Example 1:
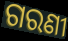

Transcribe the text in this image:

ଗରଣୀ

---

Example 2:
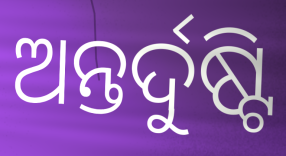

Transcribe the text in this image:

ଅନ୍ତର୍ଦୁଷ୍ଟି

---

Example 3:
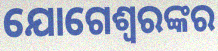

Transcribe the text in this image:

ଯୋଗେଶ୍ଵରଙ୍କର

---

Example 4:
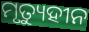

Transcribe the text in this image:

ମୃତ୍ୟୁହୀନ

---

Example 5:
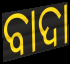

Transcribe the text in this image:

ବାଦା